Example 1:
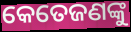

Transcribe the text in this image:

କେତେଜଣଙ୍କୁ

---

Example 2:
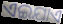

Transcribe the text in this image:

ଏଇଯାଏ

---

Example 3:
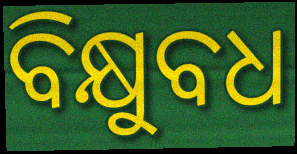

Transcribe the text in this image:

ବିକ୍ଷୁବଧ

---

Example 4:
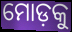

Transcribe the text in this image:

ମୋଡ଼କୁ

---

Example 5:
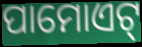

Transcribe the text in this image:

ପାମୋଏଟ୍